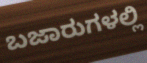
ಬಜಾರುಗಳಲ್ಲಿ